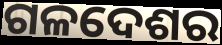
ଗଳଦେଶର